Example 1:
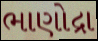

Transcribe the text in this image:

ભાણોદ્રા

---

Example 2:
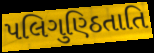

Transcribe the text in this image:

પલિગુણ્ઠિતાતિ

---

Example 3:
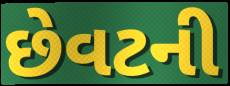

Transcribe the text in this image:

છેવટની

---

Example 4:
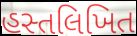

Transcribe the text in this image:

હસ્તલિખિત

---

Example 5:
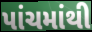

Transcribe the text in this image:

પાંચમાંથી